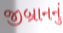
જીબ્રાનનું